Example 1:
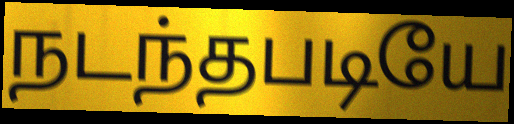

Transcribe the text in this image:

நடந்தபடியே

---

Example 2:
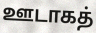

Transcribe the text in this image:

ஊடாகத்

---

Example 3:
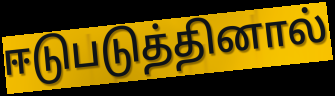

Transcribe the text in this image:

ஈடுபடுத்தினால்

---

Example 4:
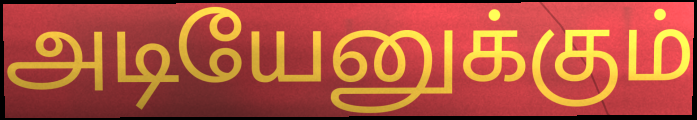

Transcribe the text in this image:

அடியேனுக்கும்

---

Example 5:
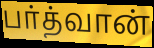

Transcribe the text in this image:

பர்த்வான்